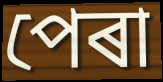
পেৰা